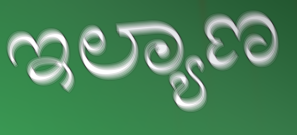
ಇಲ್ಯಾಣ